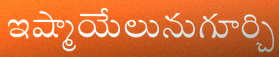
ఇష్మాయేలునుగూర్చి